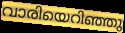
വാരിയെറിഞ്ഞു